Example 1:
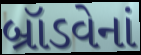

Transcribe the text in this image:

બ્રૉડવેનાં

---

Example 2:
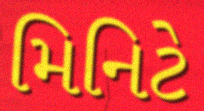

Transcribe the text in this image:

મિનિટે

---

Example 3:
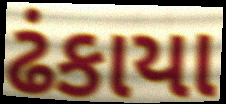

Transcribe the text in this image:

ઢંકાયા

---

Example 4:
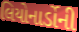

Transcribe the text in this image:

લિયોનાર્ડોની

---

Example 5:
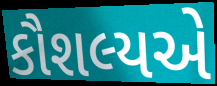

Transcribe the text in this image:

કૌશલ્યએ